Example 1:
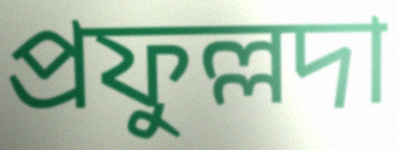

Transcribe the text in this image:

প্রফুল্লদা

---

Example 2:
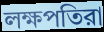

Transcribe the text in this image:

লক্ষপতিরা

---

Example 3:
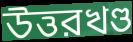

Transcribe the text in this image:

উত্তরখণ্ড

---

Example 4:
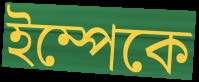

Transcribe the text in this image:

ইম্পেকে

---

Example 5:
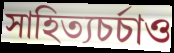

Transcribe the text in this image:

সাহিত্যচর্চাও